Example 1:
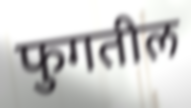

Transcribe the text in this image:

फुगतील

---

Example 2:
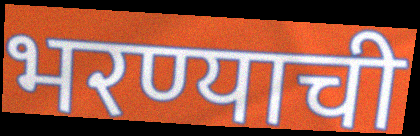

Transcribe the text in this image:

भरण्याची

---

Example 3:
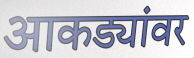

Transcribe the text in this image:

आकड्यांवर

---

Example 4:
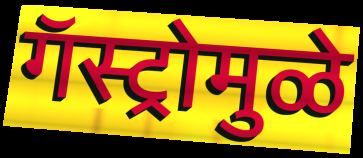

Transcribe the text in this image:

गॅस्ट्रोमुळे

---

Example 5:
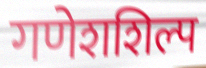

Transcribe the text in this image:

गणेशशिल्प